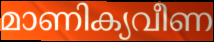
മാണിക്യവീണ